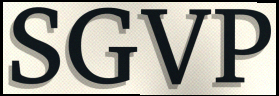
SGVP